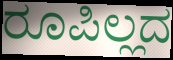
ರೂಪಿಲ್ಲದ